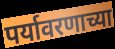
पर्यावरणाच्या